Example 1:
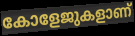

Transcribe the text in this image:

കോളേജുകളാണ്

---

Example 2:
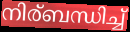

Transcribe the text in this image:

നിര്ബന്ധിച്ച്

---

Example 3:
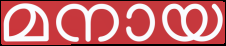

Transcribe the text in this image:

മനായ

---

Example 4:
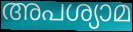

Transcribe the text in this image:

അപശ്യാമ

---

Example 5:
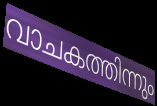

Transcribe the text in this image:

വാചകത്തിന്നും